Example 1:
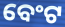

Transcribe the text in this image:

ବେଂଟ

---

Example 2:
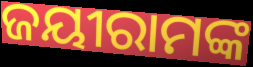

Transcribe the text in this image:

ଜୟୀରାମଙ୍କ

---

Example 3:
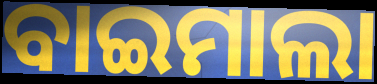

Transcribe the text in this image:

ବାଇମାଲା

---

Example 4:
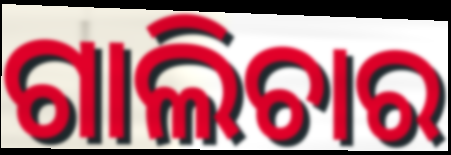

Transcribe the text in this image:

ଗାଲିଚାର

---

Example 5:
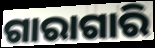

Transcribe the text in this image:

ଗାରାଗାରି